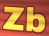
Zb